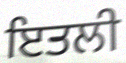
ਇਤਲੀ